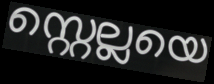
സ്റ്റെല്ലയെ